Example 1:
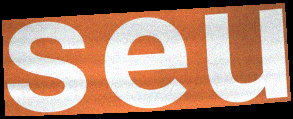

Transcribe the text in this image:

seu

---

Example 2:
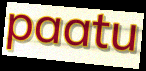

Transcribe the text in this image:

paatu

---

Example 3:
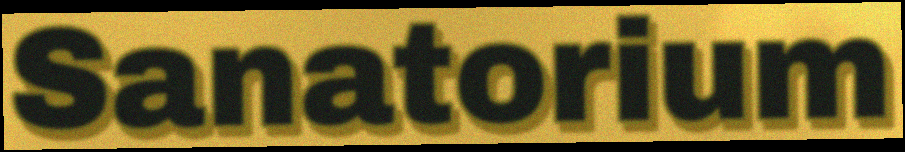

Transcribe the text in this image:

Sanatorium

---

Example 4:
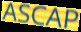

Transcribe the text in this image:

ASCAP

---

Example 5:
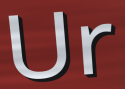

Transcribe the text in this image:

Ur